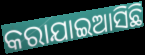
କରାଯାଇଆସିଛି